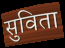
सुविता